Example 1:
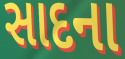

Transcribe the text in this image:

સાદના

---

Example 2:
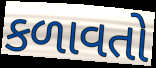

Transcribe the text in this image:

કળાવતો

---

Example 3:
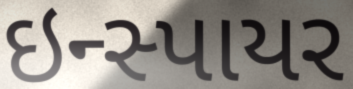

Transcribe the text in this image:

ઇન્સ્પાયર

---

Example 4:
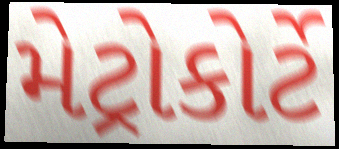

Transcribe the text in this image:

મેટ્રોકોર્ટે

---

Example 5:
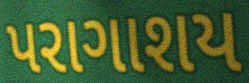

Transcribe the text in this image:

પરાગાશય